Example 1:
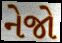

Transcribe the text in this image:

નેજો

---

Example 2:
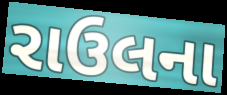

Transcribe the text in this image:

રાઉલના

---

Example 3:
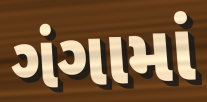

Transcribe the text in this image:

ગંગામાં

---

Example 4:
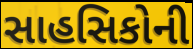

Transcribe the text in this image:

સાહસિકોની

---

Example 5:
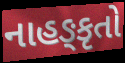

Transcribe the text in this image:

નાહઙ્કૃતો